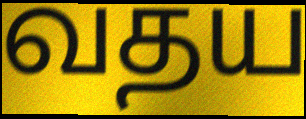
வதய